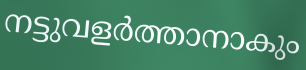
നട്ടുവളർത്താനാകും